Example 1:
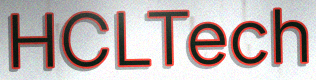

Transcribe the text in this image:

HCLTech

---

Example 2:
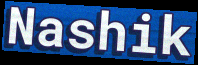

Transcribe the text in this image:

Nashik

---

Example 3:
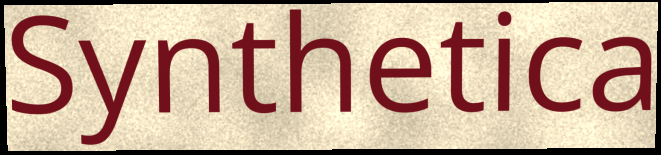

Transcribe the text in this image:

Synthetica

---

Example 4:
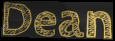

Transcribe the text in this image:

Dean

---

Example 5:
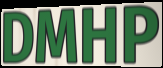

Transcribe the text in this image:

DMHP